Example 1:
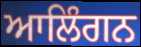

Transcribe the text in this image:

ਆਲਿੰਗਨ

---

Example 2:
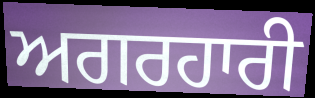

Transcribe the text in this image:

ਅਗਰਹਾਰੀ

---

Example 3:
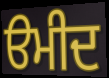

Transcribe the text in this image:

ੳਮੀਦ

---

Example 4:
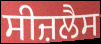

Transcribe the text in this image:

ਸੀਜ਼ਲੈਸ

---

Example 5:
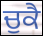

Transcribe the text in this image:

ਚੁਕੈ